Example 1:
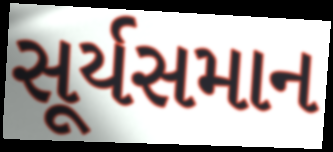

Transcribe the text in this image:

સૂર્યસમાન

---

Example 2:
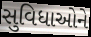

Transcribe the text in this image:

સુવિધાઓને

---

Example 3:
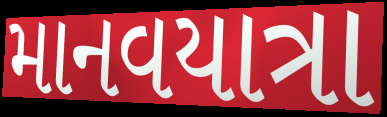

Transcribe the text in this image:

માનવયાત્રા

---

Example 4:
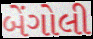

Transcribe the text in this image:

બેંગોલી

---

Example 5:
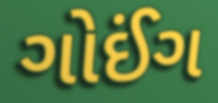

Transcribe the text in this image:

ગોઈંગ